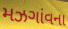
મઝગાંવના